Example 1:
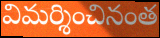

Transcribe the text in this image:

విమర్శించినంత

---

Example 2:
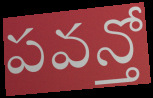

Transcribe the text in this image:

పవన్తో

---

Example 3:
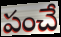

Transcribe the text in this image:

పంచే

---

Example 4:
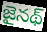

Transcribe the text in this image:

జైనథ్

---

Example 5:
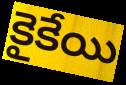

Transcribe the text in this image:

కైకేయి